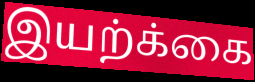
இயற்க்கை